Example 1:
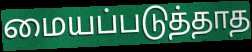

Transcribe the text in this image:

மையப்படுத்தாத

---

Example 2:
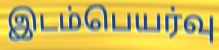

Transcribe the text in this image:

இடம்பெயர்வு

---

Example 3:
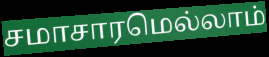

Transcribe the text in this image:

சமாசாரமெல்லாம்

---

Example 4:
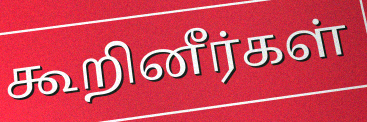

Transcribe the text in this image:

கூறினீர்கள்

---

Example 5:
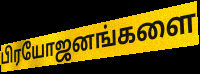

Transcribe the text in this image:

பிரயோஜனங்களை